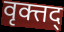
वृक्तद्